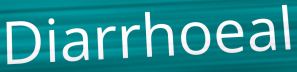
Diarrhoeal